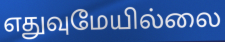
எதுவுமேயில்லை